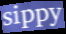
sippy